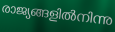
രാജ്യങ്ങളിൽനിന്നു